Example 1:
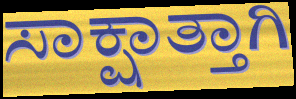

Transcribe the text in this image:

ಸಾಕ್ಷಾತ್ತಾಗಿ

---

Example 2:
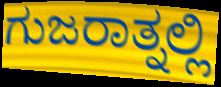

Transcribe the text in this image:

ಗುಜರಾತ್ನಲ್ಲಿ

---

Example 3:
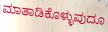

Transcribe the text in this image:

ಮಾತಾಡಿಕೊಳ್ಳುವುದೂ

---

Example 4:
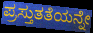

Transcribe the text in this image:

ಪ್ರಸ್ತುತತೆಯನ್ನೇ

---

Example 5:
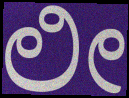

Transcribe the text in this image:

ಲೀ